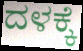
ದಳಕ್ಕೆ